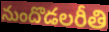
నుందొడలరీతి